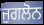
ਜੁਗਲੋਨ